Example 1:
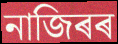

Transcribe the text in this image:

নাজিৰৰ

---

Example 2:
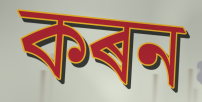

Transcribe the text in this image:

কৰন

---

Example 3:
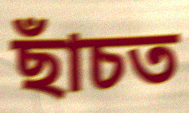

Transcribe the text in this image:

ছাঁচত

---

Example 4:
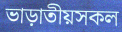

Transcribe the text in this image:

ভাড়াতীয়সকল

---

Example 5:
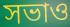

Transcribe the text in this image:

সভাও